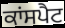
ਕਾਂਸਪੈਟ